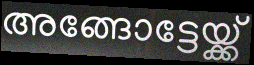
അങ്ങോട്ടേയ്ക്ക്